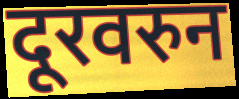
दूरवरुन